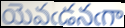
యెవఁడనఁగా